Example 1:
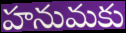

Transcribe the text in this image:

హనుమకు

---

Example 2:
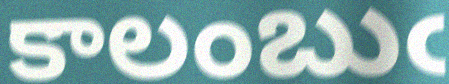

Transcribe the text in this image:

కాలంబుఁ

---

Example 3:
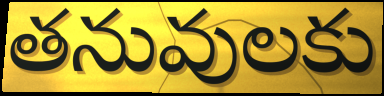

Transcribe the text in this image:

తనువులకు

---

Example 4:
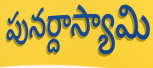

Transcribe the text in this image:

పునర్దాస్యామి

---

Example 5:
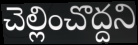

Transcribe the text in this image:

చెల్లించొద్దని